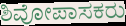
ಶಿವೋಪಾಸಕರು